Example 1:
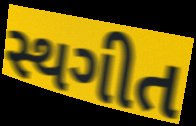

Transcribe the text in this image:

સ્થગીત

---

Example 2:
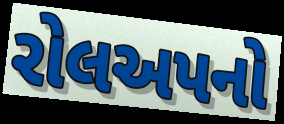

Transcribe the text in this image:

રોલઅપનો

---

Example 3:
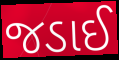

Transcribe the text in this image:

જડાઈ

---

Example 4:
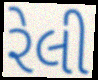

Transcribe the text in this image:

રેલી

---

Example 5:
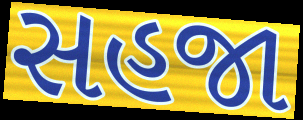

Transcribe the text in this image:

સહજા